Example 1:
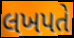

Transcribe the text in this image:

લખપતે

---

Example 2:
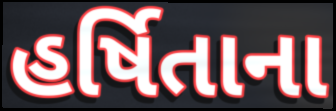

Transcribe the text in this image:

હર્ષિતાના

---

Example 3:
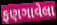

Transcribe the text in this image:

ફણગાવેલા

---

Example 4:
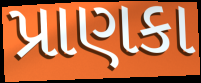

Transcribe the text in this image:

પ્રાણકા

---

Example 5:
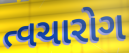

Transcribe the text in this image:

ત્વચારોગ